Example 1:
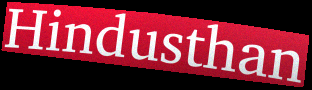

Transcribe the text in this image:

Hindusthan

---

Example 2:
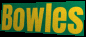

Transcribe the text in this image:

Bowles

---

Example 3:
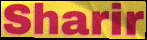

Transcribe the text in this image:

Sharir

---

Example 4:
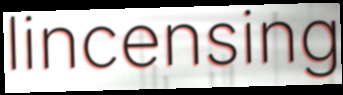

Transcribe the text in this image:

lincensing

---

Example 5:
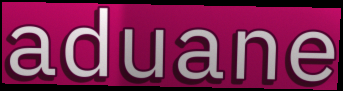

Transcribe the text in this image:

aduane